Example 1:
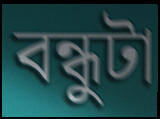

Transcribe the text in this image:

বন্ধুটা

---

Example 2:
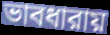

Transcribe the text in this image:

ভাবধারায়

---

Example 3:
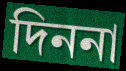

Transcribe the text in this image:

দিননা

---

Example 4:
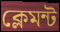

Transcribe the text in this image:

ক্লেমন্ট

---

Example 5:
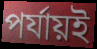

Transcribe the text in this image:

পর্যায়ই